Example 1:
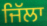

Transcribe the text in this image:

ਜਿੱਲਾ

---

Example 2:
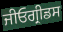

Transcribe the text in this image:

ਜੀਓਗ੍ਰੀਡਸ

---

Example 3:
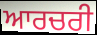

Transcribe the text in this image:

ਆਰਚਰੀ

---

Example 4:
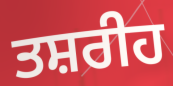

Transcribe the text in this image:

ਤਸ਼ਰੀਹ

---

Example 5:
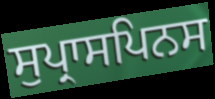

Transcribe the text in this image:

ਸੁਪ੍ਰਾਸਪਿਨਸ